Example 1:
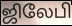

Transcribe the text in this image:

ஜிலேபி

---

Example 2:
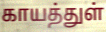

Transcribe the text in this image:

காயத்துள்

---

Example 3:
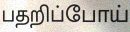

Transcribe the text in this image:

பதறிப்போய்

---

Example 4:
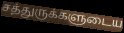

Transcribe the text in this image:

சத்துருக்களுடைய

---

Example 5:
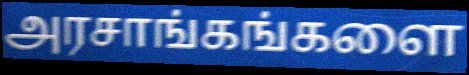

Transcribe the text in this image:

அரசாங்கங்களை